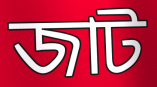
জাট